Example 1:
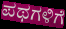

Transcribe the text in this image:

ಪಥಗಳಿಗೆ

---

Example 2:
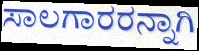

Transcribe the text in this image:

ಸಾಲಗಾರರನ್ನಾಗಿ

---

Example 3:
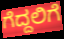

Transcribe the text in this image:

ಗೆದ್ದಲಿಗೆ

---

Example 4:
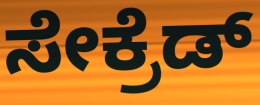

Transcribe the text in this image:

ಸೇಕ್ರೆಡ್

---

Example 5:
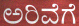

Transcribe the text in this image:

ಅರಿವೆಗೆ